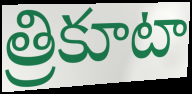
త్రికూటా